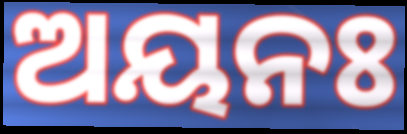
ଅୟନଃ